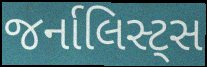
જર્નાલિસ્ટ્સ